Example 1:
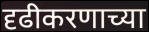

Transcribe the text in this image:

दृढीकरणाच्या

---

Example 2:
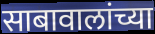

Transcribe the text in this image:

साबावालांच्या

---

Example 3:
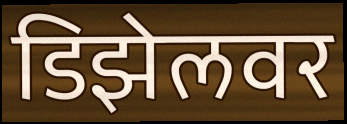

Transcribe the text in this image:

डिझेलवर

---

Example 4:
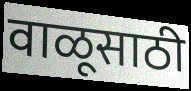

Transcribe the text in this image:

वाळूसाठी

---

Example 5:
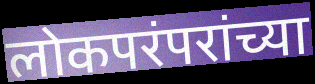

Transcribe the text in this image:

लोकपरंपरांच्या